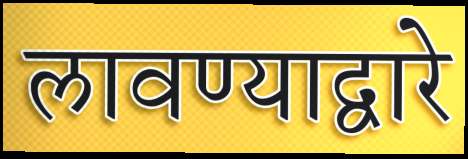
लावण्याद्वारे